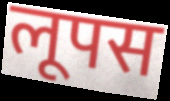
लूपस